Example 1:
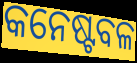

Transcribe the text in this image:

କନେଷ୍ଟବଳ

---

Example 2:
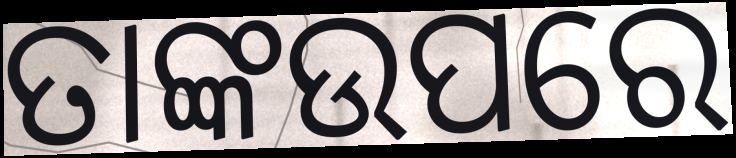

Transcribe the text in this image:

ତାଙ୍କଉପରେ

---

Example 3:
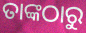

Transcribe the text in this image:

ତାଙ୍କଠାରୁ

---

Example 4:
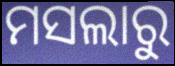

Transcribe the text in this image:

ମସଲାରୁ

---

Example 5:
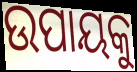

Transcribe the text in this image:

ଉପାୟକୁ